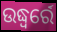
ଉଦ୍ଧ୍ୱର୍ରେ